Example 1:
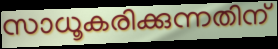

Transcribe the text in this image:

സാധൂകരിക്കുന്നതിന്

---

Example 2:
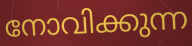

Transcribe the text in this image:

നോവിക്കുന്ന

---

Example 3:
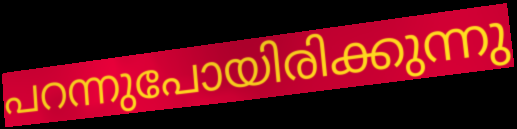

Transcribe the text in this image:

പറന്നുപോയിരിക്കുന്നു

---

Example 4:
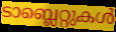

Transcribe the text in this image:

ടാബ്ലെറ്റുകൾ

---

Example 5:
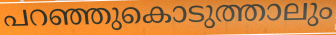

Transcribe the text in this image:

പറഞ്ഞുകൊടുത്താലും